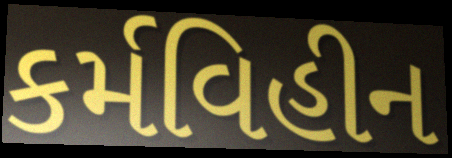
કર્મવિહીન